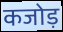
कजोड़